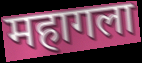
महागला